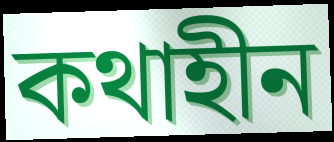
কথাহীন